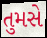
તુમસે